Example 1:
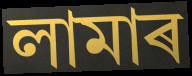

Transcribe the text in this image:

লামাৰ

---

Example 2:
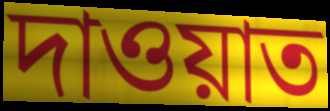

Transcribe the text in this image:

দাওয়াত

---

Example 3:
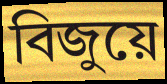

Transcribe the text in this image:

বিজুয়ে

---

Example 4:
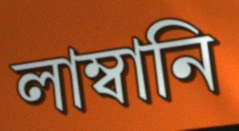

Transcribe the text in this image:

লাম্বানি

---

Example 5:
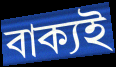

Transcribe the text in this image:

বাক্যই